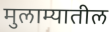
मुलाम्यातील